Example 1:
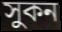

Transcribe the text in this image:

সুকন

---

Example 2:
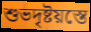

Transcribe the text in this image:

শুভদৃষ্টয়স্তে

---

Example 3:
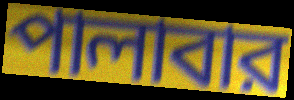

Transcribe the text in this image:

পালাবার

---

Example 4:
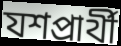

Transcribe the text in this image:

যশপ্রার্থী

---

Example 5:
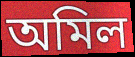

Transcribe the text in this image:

অমিল